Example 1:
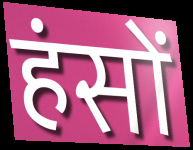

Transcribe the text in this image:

हंसों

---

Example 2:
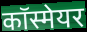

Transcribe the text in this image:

कॉस्मेयर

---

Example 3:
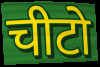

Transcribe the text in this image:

चीटो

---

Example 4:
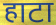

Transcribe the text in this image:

हाटा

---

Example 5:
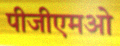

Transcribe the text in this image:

पीजीएमओ